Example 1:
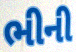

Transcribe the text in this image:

ભીની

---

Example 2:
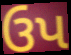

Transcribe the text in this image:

ઉપ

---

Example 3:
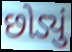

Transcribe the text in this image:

છોડ્યું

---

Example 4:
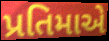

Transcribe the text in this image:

પ્રતિમાએ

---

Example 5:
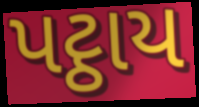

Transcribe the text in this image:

પટ્ઠાય